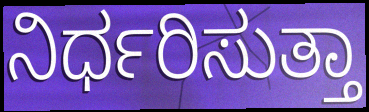
ನಿರ್ಧರಿಸುತ್ತಾ